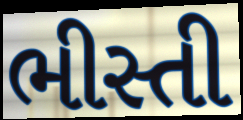
ભીસ્તી